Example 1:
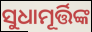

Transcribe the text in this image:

ସୁଧାମୂର୍ତ୍ତିଙ୍କ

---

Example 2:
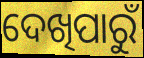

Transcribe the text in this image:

ଦେଖିପାରୁଁ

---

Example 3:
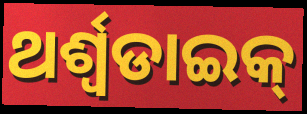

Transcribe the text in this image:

ଥର୍ଶ୍ଵଡାଇକ୍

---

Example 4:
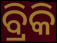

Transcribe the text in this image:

ବ୍ରିକି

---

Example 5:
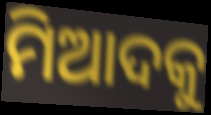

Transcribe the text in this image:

ମିଆଦକୁ